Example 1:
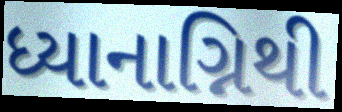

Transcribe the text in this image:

ધ્યાનાગ્નિથી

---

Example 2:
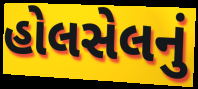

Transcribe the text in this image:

હોલસેલનું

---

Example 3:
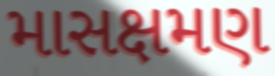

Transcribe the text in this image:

માસક્ષમણ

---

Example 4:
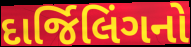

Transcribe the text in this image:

દાર્જિલિંગનો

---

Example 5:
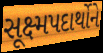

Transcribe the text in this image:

સૂક્ષ્મપદાર્થોને